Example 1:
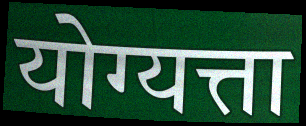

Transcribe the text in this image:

योग्यत्ता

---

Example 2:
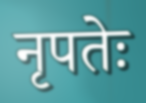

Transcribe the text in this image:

नृपतेः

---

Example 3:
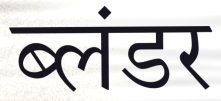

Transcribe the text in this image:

ब्लंडर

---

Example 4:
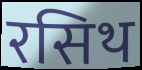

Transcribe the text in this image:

रसिथ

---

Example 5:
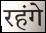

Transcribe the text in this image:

रहंगे